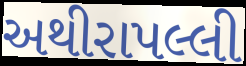
અથીરાપલ્લી